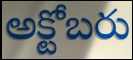
అక్టోబరు